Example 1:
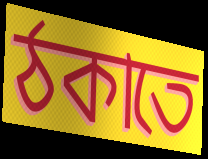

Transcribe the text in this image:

ঠকাতে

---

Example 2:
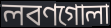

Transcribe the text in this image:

লবণগোলা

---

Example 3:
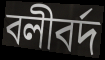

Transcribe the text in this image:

বলীবর্দ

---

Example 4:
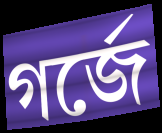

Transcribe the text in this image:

গর্জে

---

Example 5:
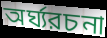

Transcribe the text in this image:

অর্ঘ্যরচনা